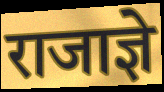
राजाज्ञे